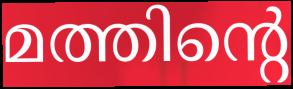
മത്തിന്റെ